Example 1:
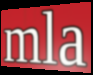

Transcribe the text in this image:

mla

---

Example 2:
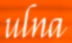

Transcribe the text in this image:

ulna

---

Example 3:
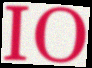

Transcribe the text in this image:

IO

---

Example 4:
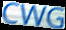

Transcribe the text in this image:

CWG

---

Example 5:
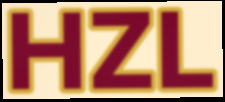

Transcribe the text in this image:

HZL